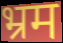
भ्रम